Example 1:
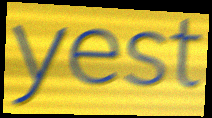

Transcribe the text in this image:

yest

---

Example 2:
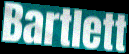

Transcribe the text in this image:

Bartlett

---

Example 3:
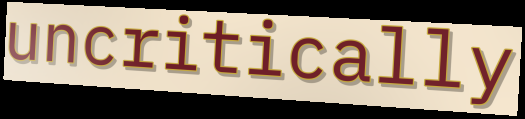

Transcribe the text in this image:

uncritically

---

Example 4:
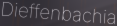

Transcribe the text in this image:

Dieffenbachia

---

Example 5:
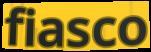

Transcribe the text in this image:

fiasco